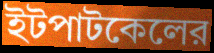
ইটপাটকেলের